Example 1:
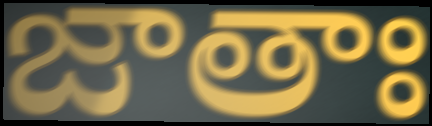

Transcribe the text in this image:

జాతాః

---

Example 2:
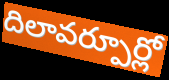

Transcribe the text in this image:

దిలావర్పూర్లో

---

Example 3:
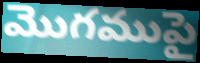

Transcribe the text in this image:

మొగముపై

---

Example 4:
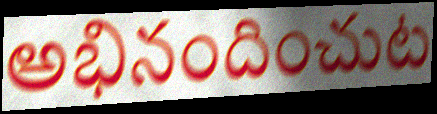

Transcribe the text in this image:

అభినందించుట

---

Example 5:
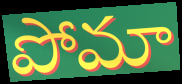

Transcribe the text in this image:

పోమా